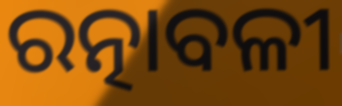
ରତ୍ନାବଳୀ